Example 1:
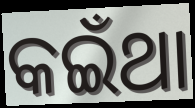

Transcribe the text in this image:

କଇଁଥା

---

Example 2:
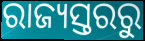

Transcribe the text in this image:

ରାଜ୍ୟସ୍ତରରୁ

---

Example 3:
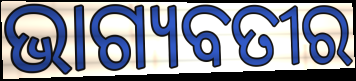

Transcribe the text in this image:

ଭାଗ୍ୟବତୀର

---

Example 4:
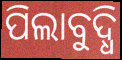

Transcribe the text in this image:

ପିଲାବୁଦ୍ଧି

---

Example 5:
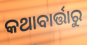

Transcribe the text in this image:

କଥାବାର୍ତ୍ତାରୁ